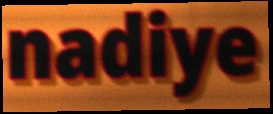
nadiye